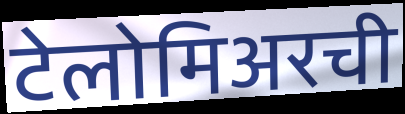
टेलोमिअरची